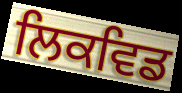
ਲਿਕਵਿਡ